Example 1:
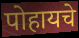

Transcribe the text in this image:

पोहायचे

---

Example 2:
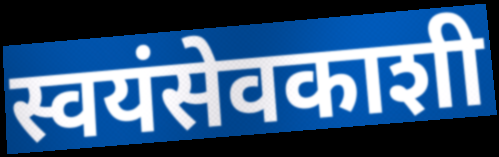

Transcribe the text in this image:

स्वयंसेवकाशी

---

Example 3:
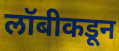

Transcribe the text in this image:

लॉबीकडून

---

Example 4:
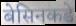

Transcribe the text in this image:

बेसिनकडे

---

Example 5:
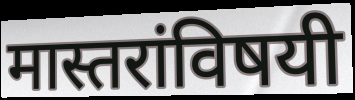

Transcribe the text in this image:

मास्तरांविषयी